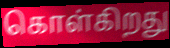
கொள்கிறது